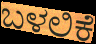
ಬಳಲಿಕೆ